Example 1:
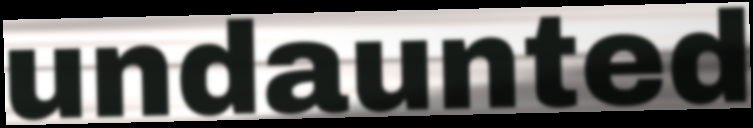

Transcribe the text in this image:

undaunted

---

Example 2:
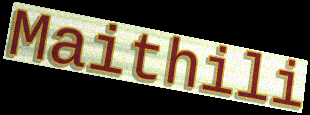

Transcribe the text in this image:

Maithili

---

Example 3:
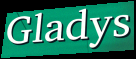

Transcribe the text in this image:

Gladys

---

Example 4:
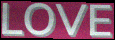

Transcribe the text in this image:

LOVE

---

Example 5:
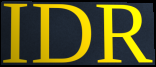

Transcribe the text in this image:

IDR